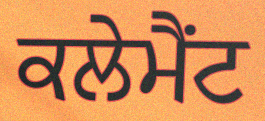
ਕਲੇਮੈਂਟ